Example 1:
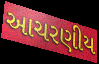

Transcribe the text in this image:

આચરણીય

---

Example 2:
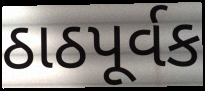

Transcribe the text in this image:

ઠાઠપૂર્વક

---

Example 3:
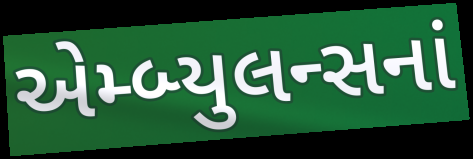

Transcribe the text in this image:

એમ્બ્યુલન્સનાં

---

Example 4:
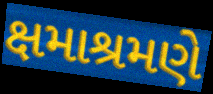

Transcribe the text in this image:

ક્ષમાશ્રમણે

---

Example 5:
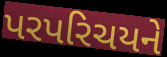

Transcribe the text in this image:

પરપરિચયને